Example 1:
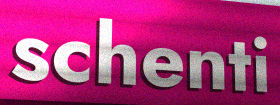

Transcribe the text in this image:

schenti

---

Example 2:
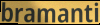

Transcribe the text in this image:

bramanti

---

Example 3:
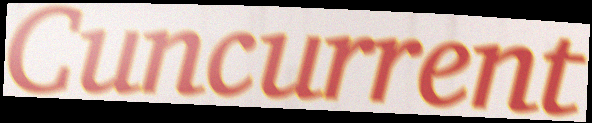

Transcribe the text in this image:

Cuncurrent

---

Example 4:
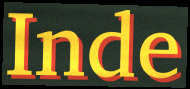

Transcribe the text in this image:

Inde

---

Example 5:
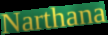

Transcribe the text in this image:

Narthana